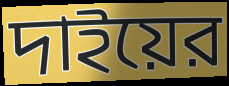
দাইয়ের